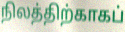
நிலத்திற்காகப்